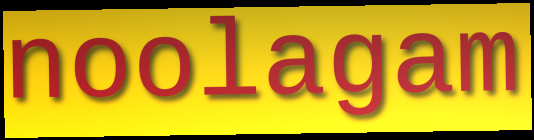
noolagam